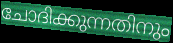
ചോദിക്കുന്നതിനും